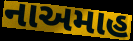
નાઅમાહ